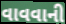
વાવવાની